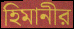
হিমানীর